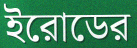
ইরোডের